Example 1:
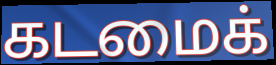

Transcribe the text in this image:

கடமைக்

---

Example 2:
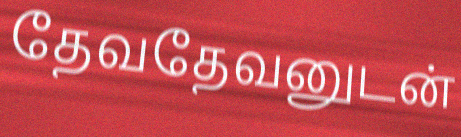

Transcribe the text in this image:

தேவதேவனுடன்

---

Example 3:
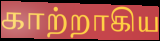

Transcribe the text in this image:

காற்றாகிய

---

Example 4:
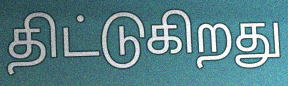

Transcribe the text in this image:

திட்டுகிறது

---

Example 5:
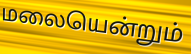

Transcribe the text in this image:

மலையென்றும்